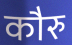
कौरु